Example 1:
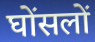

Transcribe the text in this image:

घोंसलों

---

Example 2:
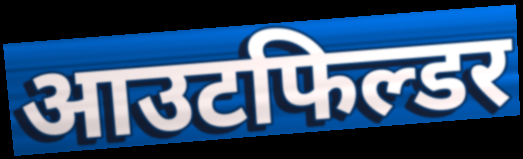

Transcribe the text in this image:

आउटफिल्डर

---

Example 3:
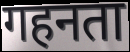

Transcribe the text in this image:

गहनता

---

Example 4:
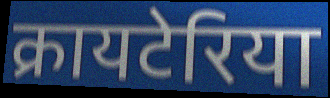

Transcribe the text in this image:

क्रायटेरिया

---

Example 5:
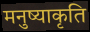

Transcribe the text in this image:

मनुष्याकृति